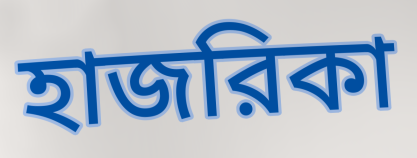
হাজরিকা